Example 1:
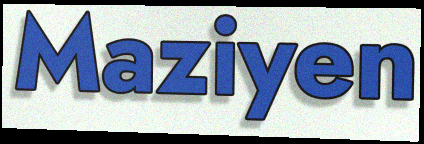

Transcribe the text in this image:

Maziyen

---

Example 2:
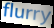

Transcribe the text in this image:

flurry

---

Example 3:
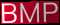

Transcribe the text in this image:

BMP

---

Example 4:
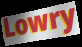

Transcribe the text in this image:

Lowry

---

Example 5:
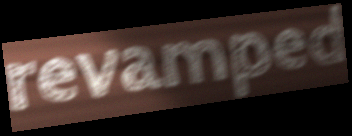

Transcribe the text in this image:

revamped